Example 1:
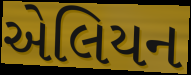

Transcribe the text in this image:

એલિયન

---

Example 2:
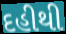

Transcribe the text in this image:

દહીથી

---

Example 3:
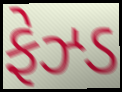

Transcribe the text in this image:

ફેઝ્ડ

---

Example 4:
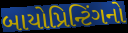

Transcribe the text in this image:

બાયોપ્રિન્ટિંગનો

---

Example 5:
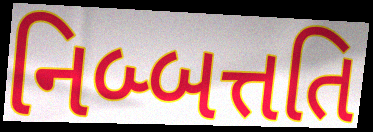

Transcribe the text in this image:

નિબ્બત્તતિ